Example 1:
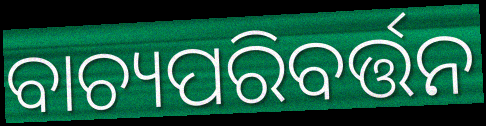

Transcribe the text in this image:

ବାଚ୍ୟପରିବର୍ତ୍ତନ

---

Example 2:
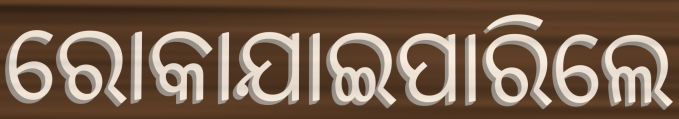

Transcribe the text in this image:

ରୋକାଯାଇପାରିଲେ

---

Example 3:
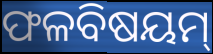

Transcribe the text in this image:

ଫଳବିଷୟମ୍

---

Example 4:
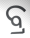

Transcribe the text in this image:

ବ୍ର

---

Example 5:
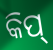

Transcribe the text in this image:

କିପ୍